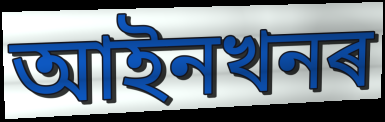
আইনখনৰ